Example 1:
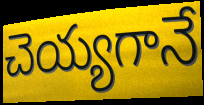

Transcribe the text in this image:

చెయ్యగానే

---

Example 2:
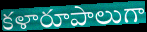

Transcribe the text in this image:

కళారూపాలుగా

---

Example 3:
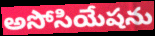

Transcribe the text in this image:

అసోసియేషను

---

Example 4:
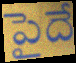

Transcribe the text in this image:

పైదే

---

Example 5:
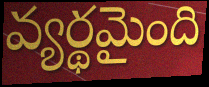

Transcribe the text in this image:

వ్యర్థమైంది